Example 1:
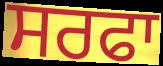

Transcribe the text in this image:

ਸਰਫਾ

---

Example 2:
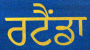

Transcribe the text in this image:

ਰਟੈਂਡਾ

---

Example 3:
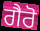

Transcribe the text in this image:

ਗੈਰੋ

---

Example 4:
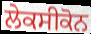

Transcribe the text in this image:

ਲੇਕਸੀਕੋਨ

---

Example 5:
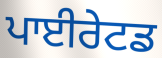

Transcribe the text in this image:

ਪਾਈਰੇਟਡ